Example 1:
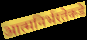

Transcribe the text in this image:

आत्मनिर्भरतेकडे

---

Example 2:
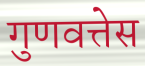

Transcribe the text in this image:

गुणवत्तेस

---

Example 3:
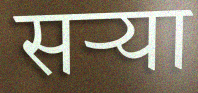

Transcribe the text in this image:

सऱ्या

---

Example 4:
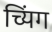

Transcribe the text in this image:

च्यिंग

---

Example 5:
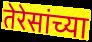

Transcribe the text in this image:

तेरेसांच्या